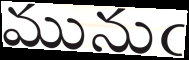
మునుఁ